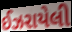
ઈઝરાયેલી